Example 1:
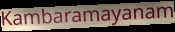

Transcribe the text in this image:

Kambaramayanam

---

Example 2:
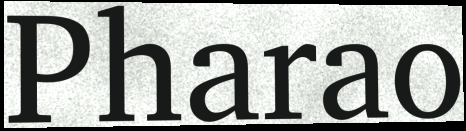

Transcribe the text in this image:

Pharao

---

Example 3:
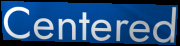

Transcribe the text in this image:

Centered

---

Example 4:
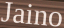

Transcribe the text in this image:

Jaino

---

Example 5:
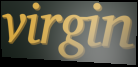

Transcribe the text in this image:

virgin